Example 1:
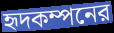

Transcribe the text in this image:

হৃদকম্পনের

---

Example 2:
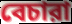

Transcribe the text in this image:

বেচারা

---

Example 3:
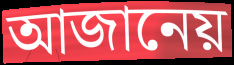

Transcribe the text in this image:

আজানেয়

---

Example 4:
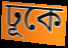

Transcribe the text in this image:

ঢূকে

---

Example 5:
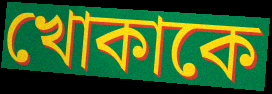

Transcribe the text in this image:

খোকাকে